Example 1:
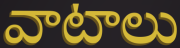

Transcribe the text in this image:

వాటాలు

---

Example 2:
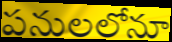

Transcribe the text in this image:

పనులలోనూ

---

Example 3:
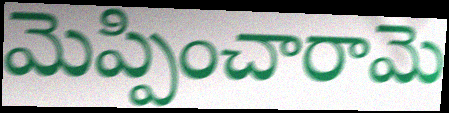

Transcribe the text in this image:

మెప్పించారామె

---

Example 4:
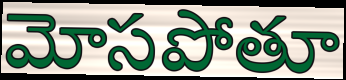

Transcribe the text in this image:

మోసపోతూ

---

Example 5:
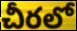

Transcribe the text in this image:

చీరలో